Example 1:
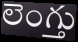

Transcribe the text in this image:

లెంగ్తు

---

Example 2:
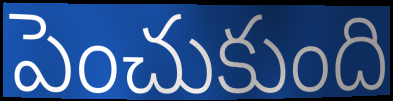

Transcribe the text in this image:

పెంచుకుంది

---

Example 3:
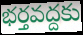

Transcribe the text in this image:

భర్తవద్దకు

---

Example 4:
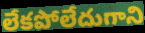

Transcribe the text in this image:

లేకపోలేదుగాని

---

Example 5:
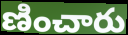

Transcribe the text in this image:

ణించారు